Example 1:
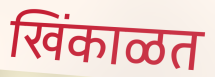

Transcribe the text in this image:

खिंकाळत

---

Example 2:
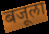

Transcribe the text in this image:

बजूला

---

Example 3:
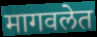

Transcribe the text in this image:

मागवलेत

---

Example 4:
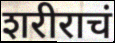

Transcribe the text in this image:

शरीराचं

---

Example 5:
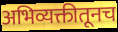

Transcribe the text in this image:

अभिव्यक्तीतूनच